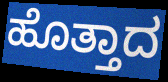
ಹೊತ್ತಾದ